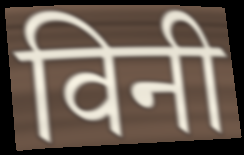
विनी